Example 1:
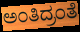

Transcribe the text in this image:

ಅಂತಿದ್ರಂತೆ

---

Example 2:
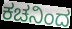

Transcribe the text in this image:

ಕಚನಿಂದ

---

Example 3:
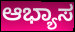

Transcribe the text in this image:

ಆಭ್ಯಾಸ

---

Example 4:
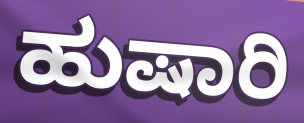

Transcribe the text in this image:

ಹುಷಾರಿ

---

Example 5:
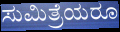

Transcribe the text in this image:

ಸುಮಿತ್ರೆಯರೂ